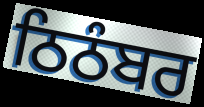
ਠਿਠੰਬਰ